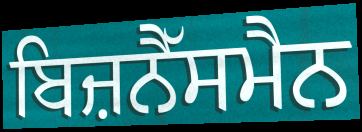
ਬਿਜ਼ਨੈੱਸਮੈਨ